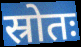
स्रोतः